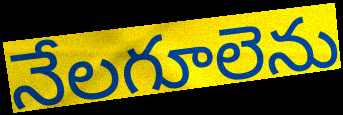
నేలగూలెను